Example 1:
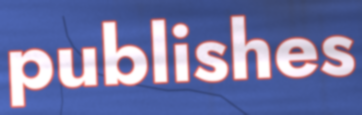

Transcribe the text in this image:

publishes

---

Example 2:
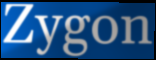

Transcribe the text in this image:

Zygon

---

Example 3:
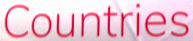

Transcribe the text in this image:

Countries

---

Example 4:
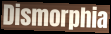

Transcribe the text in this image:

Dismorphia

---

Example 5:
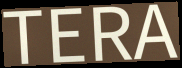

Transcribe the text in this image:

TERA